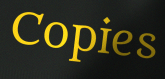
Copies